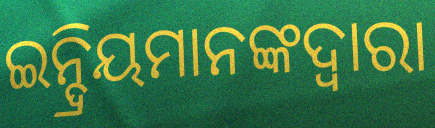
ଇନ୍ଦ୍ରିୟମାନଙ୍କଦ୍ୱାରା